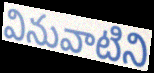
వినువాటిని